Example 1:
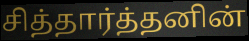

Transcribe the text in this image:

சித்தார்த்தனின்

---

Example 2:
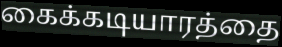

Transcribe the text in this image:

கைக்கடியாரத்தை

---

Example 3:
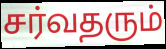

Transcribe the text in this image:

சர்வதரும்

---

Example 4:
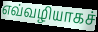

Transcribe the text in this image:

எவ்வழியாகச்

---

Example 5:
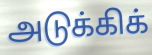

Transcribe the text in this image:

அடுக்கிக்